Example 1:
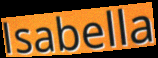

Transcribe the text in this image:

Isabella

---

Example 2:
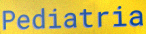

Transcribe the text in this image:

Pediatria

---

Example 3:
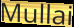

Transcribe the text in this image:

Mullai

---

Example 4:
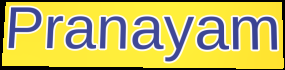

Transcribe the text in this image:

Pranayam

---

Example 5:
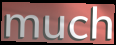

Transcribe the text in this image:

much